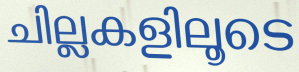
ചില്ലകളിലൂടെ